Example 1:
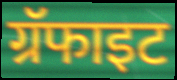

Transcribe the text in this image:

ग्रॅफाइट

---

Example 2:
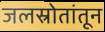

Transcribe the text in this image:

जलस्रोतांतून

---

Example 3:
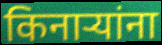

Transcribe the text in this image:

किनाऱ्यांना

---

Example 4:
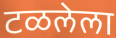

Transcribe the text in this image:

टळलेला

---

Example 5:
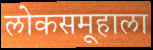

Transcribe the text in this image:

लोकसमूहाला